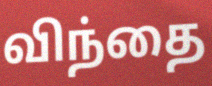
விந்தை